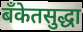
बँकेतसुद्धा